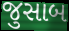
જુસાબ